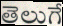
తెలుగే